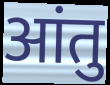
आंतु